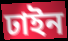
ঢাইন